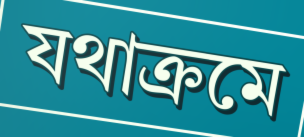
যথাক্রমে